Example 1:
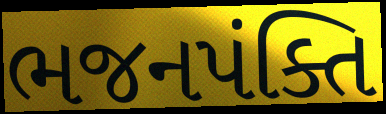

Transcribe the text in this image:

ભજનપંક્તિ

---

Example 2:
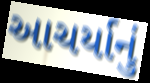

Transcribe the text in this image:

આચર્યાનું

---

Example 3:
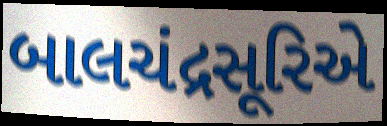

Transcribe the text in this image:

બાલચંદ્રસૂરિએ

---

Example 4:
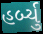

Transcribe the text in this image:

હર્બ્યુ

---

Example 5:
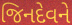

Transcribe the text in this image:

જિનદેવને